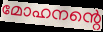
മോഹനന്റെ